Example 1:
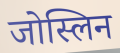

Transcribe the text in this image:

जोस्लिन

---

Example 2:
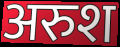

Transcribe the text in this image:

अरुश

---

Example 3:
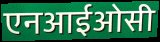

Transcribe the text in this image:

एनआईओसी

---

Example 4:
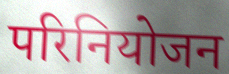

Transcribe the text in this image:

परिनियोजन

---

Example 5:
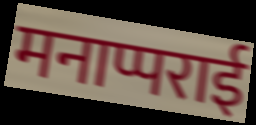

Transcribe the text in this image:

मनाप्पराई